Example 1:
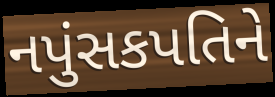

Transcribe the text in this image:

નપુંસકપતિને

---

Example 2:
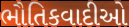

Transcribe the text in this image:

ભૌતિકવાદીઓ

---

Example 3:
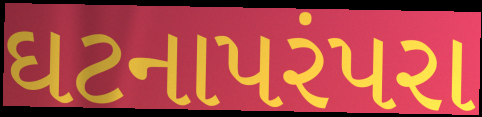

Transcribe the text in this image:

ઘટનાપરંપરા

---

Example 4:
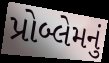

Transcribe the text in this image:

પ્રોબ્લેમનું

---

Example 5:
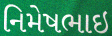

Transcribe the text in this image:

નિમેષભાઇ